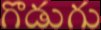
గొడుగు